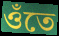
ওঁতে